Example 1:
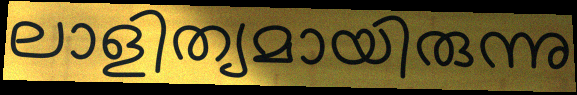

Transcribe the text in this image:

ലാളിത്യമായിരുന്നു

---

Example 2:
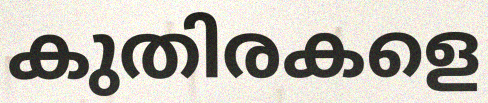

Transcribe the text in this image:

കുതിരകളെ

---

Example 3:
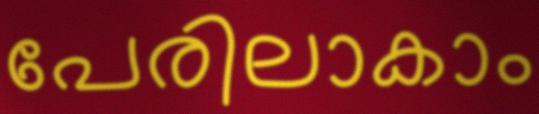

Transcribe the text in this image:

പേരിലാകാം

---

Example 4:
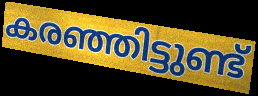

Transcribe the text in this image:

കരഞ്ഞിട്ടുണ്ട്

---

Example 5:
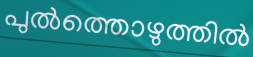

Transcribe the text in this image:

പുൽത്തൊഴുത്തിൽ